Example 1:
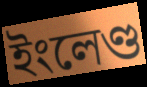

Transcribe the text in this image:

ইংলেণ্ড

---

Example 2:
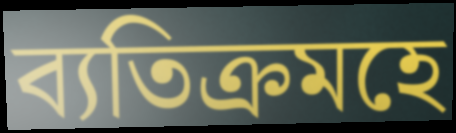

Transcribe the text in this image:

ব্যতিক্ৰমহে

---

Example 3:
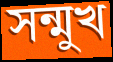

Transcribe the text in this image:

সন্মুখ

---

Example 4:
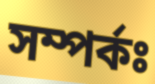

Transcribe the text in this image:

সম্পৰ্কঃ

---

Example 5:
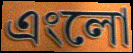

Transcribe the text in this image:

এংলো